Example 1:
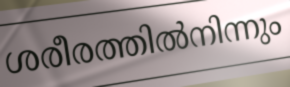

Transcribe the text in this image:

ശരീരത്തിൽനിന്നും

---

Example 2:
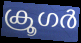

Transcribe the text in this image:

ക്രൂഗർ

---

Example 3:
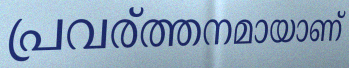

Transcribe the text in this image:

പ്രവര്ത്തനമായാണ്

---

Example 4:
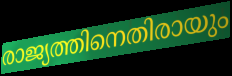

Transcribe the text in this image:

രാജ്യത്തിനെതിരായും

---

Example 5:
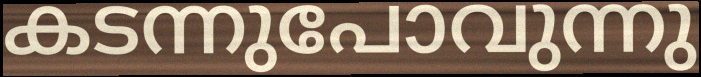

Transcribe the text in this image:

കടന്നുപോവുന്നു